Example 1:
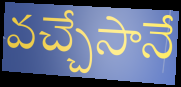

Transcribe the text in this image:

వచ్చేసానే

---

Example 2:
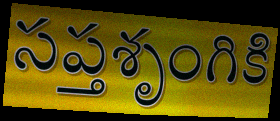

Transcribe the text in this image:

సప్తశృంగికి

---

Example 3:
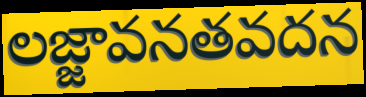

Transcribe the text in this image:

లజ్జావనతవదన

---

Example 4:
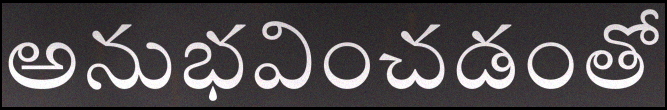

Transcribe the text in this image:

అనుభవించడంతో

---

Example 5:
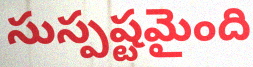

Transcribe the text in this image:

సుస్పష్టమైంది